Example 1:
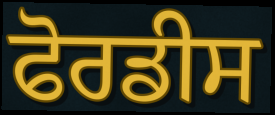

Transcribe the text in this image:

ਫੋਰਡੀਸ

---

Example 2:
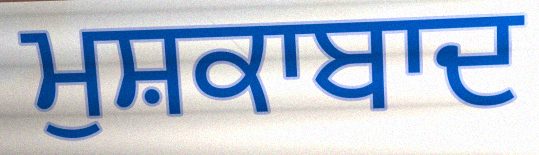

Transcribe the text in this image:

ਮੁਸ਼ਕਾਬਾਦ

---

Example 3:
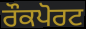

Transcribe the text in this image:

ਰੌਕਪੋਰਟ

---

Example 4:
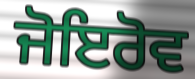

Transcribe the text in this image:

ਜੋਇਰੋਵ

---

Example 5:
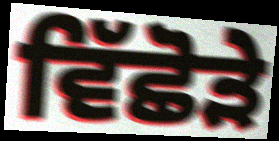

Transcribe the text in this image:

ਵਿੱਛੋੜੇ